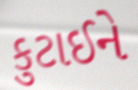
કુટાઈને